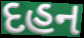
દહન